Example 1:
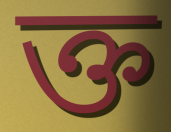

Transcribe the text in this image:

ক্ত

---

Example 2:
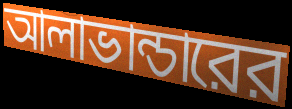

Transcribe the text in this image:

আলাভান্ডারের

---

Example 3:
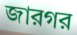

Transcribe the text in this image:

জারগর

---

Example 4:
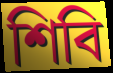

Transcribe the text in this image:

শিবি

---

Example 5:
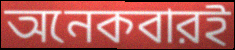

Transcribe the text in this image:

অনেকবারই